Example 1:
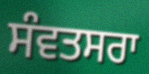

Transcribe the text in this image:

ਸੰਵਤਸਰਾ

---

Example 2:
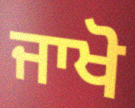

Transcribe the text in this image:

ਜਾਖੋ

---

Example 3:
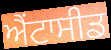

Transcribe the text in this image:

ਐਂਟਾਸੀਡ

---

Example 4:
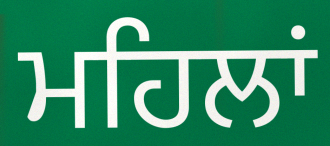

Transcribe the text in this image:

ਮਹਿਲਾਂ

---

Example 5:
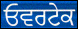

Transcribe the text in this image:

ਓਵਰਟੇਕ